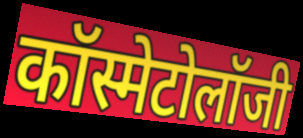
कॉस्मेटोलॉजी